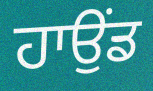
ਹਾਉਂਡ